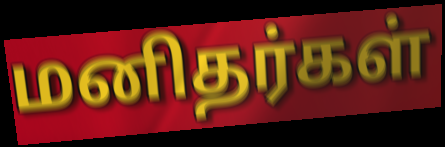
மனிதர்கள்